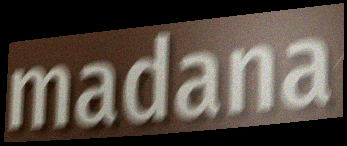
madana